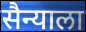
सैन्याला